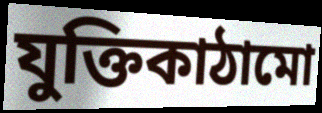
যুক্তিকাঠামো